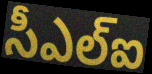
సీఎల్ఐ